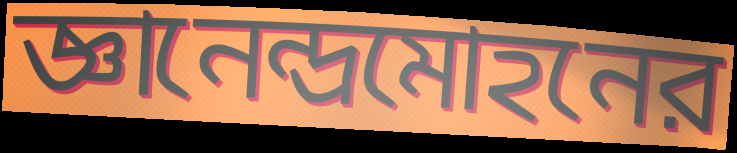
জ্ঞানেন্দ্রমোহনের